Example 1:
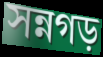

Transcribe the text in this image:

সন্নগড়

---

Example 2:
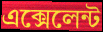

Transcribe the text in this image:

এক্সেলেন্ট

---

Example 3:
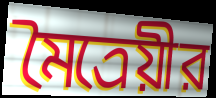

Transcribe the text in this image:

মৈত্রেয়ীর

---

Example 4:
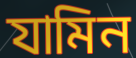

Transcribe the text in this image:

যামিন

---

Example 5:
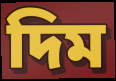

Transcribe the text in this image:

দিম